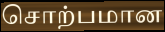
சொற்பமான